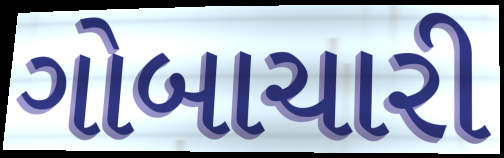
ગોબાચારી